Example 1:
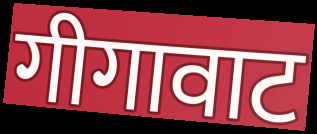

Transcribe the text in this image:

गीगावाट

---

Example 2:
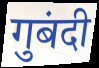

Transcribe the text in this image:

गुबंदी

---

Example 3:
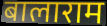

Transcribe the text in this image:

बालाराम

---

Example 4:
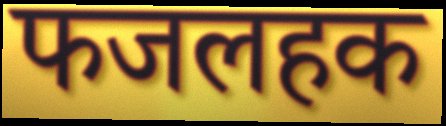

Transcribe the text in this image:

फजलहक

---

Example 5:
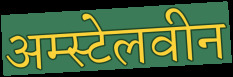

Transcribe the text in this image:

अम्स्टेलवीन